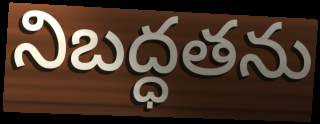
నిబద్ధతను